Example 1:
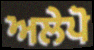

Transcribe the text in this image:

ਅਲੇਪੋ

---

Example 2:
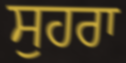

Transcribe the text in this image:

ਸੁਹਰਾ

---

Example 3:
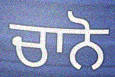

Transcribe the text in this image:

ਚਾਨੋ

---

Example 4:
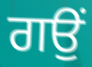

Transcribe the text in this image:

ਗਉਂ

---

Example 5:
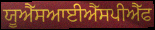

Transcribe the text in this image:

ਯੂਐੱਸਆਈਐੱਸਪੀਐੱਫ